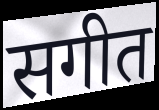
सगीत